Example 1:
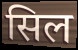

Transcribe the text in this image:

सिल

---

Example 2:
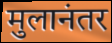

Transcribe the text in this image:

मुलानंतर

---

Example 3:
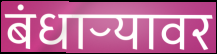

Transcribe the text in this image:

बंधाऱ्यावर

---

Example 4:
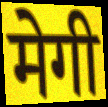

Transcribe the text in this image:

मेगी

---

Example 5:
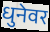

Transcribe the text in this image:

धुनेवर